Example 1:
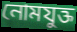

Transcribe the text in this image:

নোমযুক্ত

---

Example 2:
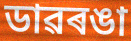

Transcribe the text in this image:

ডাৱৰঙা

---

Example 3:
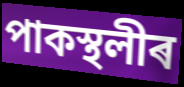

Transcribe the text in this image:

পাকস্থলীৰ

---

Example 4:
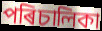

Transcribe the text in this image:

পৰিচালিকা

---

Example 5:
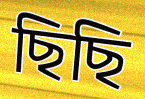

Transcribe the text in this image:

ছিছি